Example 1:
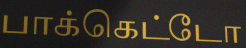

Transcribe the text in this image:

பாக்கெட்டோ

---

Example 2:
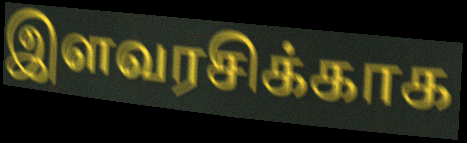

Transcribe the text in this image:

இளவரசிக்காக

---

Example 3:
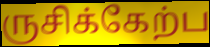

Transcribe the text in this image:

ருசிக்கேற்ப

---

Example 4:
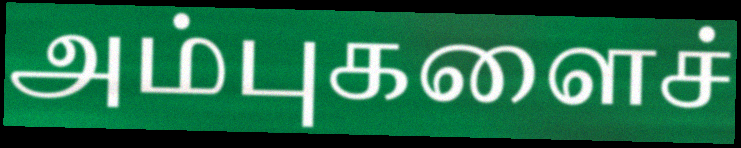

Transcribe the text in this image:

அம்புகளைச்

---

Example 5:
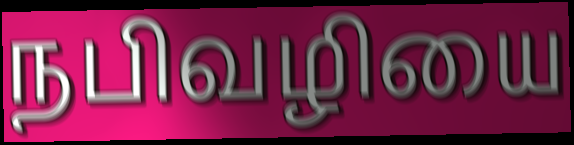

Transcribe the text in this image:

நபிவழியை